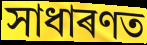
সাধাৰণত